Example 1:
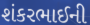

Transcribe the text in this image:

શંકરભાઈની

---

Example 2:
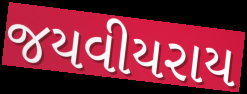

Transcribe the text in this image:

જયવીયરાય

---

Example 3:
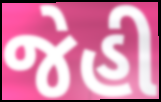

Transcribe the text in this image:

જેહી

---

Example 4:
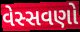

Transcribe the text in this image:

વેસ્સવણો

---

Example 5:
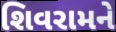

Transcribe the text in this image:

શિવરામને